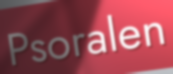
Psoralen